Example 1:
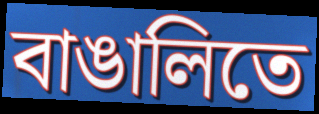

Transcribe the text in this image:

বাঙালিতে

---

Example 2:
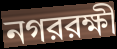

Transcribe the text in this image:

নগররক্ষী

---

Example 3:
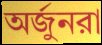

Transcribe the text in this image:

অর্জুনরা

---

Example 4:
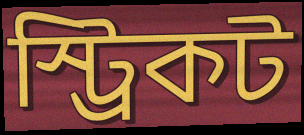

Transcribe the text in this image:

স্ট্রিকট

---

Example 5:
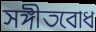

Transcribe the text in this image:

সঙ্গীতবোধ